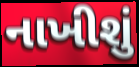
નાખીશું